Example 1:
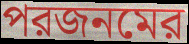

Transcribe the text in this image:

পরজনমের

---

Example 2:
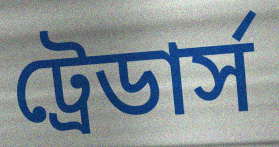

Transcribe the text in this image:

ট্রেডার্স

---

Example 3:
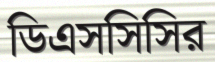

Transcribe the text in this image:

ডিএসসিসির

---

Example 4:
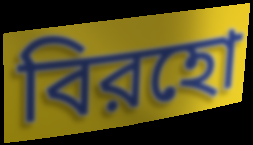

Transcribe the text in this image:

বিরহো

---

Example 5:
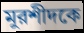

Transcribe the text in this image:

মুরশীদকে